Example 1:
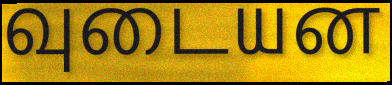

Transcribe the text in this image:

வுடையன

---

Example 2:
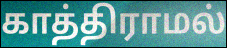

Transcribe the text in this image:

காத்திராமல்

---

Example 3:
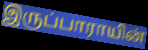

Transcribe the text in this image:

இருப்பாராயின்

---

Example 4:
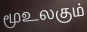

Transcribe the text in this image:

மூஉலகும்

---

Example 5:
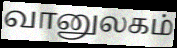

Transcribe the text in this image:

வானுலகம்